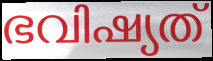
ഭവിഷ്യത്